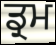
ਡ੍ਰਮ